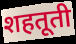
शहतूती